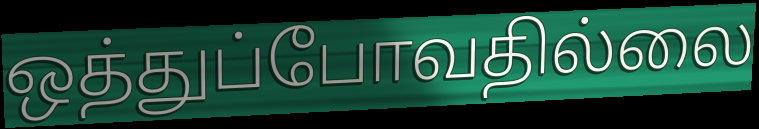
ஒத்துப்போவதில்லை